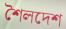
শৈলদেশ